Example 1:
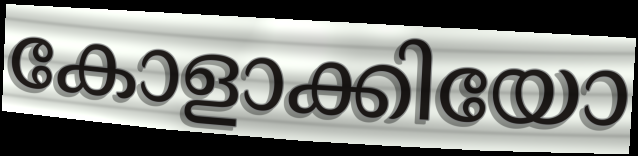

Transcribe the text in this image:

കോളാക്കിയോ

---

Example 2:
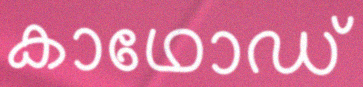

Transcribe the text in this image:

കാഥോഡ്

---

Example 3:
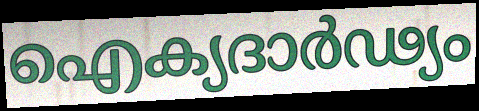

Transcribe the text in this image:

ഐക്യദാർഢ്യം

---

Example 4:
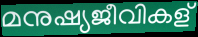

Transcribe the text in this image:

മനുഷ്യജീവികള്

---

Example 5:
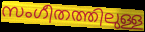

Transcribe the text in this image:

സംഗീതത്തിലുള്ള